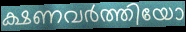
ക്ഷണവർത്തിയോ